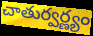
చాతుర్వర్ణ్యం